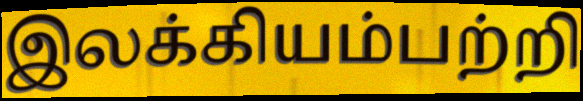
இலக்கியம்பற்றி